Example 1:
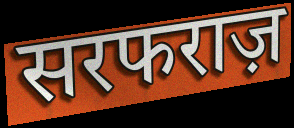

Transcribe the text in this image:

सरफराज़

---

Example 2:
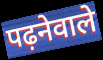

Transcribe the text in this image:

पढ़नेवाले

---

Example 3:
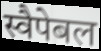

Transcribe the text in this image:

स्वैपेबल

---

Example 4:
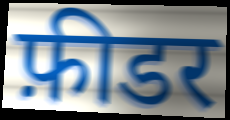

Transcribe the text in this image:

फ़ीडर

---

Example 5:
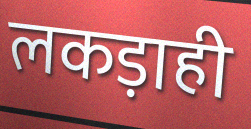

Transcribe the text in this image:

लकड़ाही